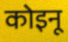
कोइनू